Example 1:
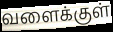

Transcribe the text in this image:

வளைக்குள்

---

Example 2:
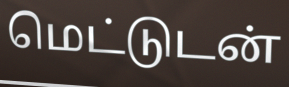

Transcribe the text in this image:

மெட்டுடன்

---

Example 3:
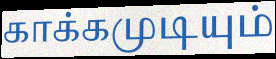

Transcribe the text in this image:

காக்கமுடியும்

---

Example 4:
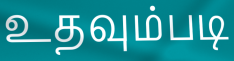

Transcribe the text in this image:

உதவும்படி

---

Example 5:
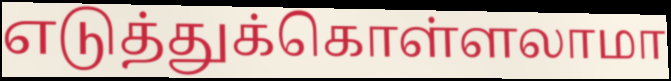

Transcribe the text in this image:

எடுத்துக்கொள்ளலாமா